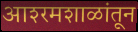
आश्रमशाळांतून